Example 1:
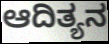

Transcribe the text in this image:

ಆದಿತ್ಯನ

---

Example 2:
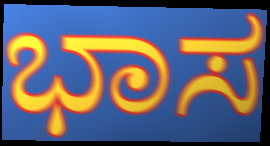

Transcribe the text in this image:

ಭಾಸ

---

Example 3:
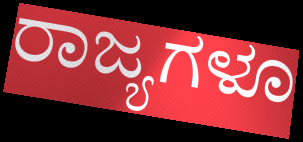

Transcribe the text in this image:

ರಾಜ್ಯಗಳೂ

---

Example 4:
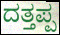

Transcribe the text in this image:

ದತ್ತಪ್ಪ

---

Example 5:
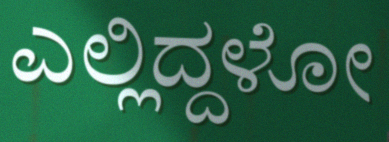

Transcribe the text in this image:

ಎಲ್ಲಿದ್ದಳೋ